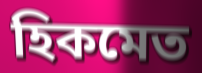
হিকমেত